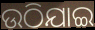
ଉଠିଯାଇ